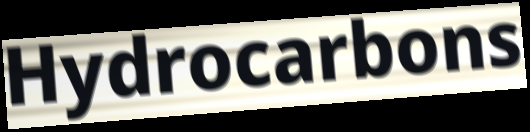
Hydrocarbons